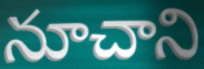
నూచాని